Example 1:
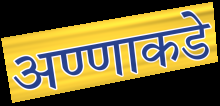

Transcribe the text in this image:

अण्णाकडे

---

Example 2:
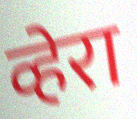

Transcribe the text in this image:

व्हेरा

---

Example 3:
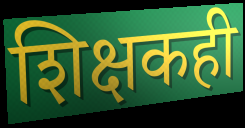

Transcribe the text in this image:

शिक्षकही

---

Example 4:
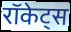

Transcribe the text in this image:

रॉकेट्स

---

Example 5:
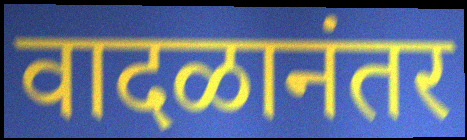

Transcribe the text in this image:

वादळानंतर